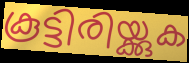
കൂട്ടിരിയ്ക്കുക